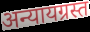
अन्यायग्रस्त